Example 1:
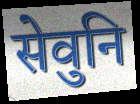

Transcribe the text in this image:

सेवुनि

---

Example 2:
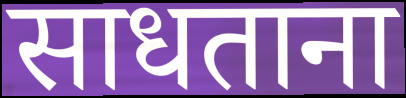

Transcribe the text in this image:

साधताना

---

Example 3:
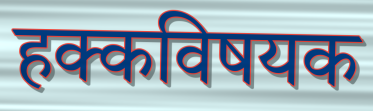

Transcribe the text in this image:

हक्कविषयक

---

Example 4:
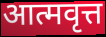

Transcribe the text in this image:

आत्मवृत्त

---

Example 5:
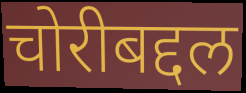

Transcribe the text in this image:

चोरीबद्दल